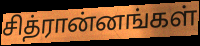
சித்ரான்னங்கள்